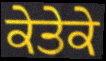
ਕੇਤੇਕੇ